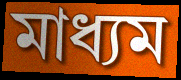
মাধ্যম